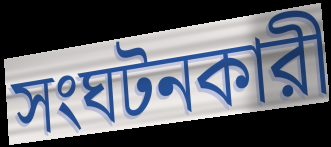
সংঘটনকারী